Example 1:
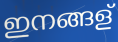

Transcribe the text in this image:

ഇനങ്ങള്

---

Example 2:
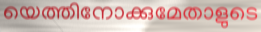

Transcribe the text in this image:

യെത്തിനോക്കുമേതാളുടെ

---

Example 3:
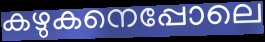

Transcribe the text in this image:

കഴുകനെപ്പോലെ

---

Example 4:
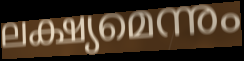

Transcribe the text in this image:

ലക്ഷ്യമെന്നും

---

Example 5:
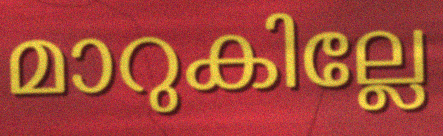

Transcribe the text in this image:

മാറുകില്ലേ